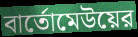
বার্তোমেউয়ের